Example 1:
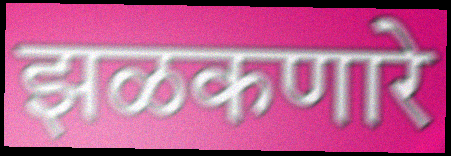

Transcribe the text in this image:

झळकणारे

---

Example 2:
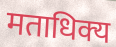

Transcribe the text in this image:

मताधिक्‍य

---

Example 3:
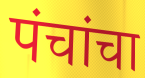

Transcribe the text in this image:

पंचांचा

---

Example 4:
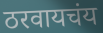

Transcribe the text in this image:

ठरवायचंय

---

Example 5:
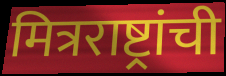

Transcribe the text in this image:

मित्रराष्ट्रांची